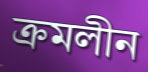
ক্রমলীন